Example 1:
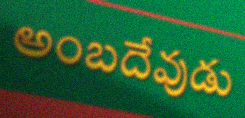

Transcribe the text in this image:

అంబదేవుడు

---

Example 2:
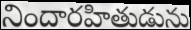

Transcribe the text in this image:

నిందారహితుడును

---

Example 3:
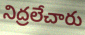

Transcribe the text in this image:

నిద్రలేచారు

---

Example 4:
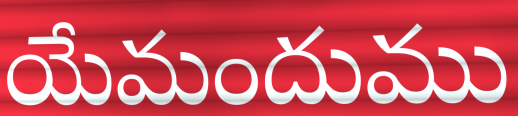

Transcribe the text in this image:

యేమందుము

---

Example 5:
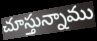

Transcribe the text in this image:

చూస్తున్నాము